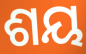
ଶୟ